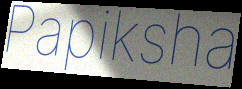
Papiksha